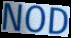
NOD